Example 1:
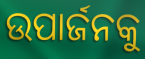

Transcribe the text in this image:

ଉପାର୍ଜନକୁ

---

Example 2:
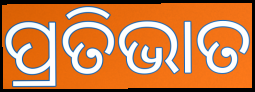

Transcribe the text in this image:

ପ୍ରତିଭାତ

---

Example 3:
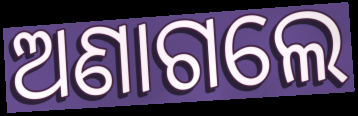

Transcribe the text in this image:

ଅଣାଗଲେ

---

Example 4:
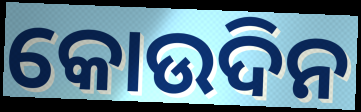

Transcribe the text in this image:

କୋଉଦିନ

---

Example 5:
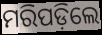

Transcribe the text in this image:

ମରିପଡ଼ିଲେ